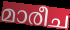
മാരീച